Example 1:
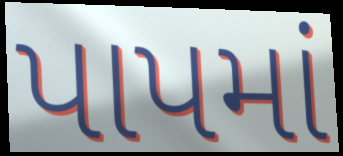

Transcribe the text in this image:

પાપમાં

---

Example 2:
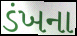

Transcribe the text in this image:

ડંખના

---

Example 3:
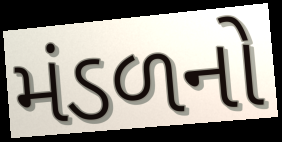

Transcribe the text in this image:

મંડળનો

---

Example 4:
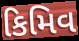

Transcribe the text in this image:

કિમિવ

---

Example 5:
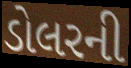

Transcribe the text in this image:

ડોલરની